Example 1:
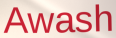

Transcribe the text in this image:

Awash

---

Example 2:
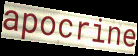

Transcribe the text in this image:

apocrine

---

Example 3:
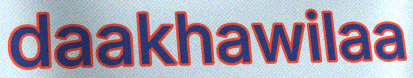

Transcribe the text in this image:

daakhawilaa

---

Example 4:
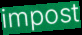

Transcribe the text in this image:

impost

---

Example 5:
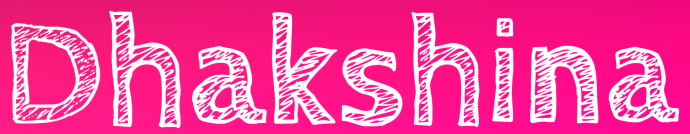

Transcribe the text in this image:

Dhakshina